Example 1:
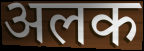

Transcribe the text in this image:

अलक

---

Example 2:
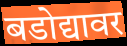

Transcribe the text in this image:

बडोद्यावर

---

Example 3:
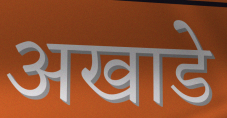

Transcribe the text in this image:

अखाडे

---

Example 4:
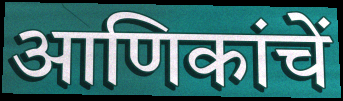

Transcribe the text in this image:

आणिकांचें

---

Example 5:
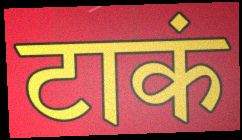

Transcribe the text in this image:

टाकं